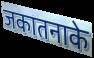
जकातनाके